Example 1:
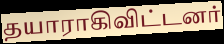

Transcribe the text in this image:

தயாராகிவிட்டனர்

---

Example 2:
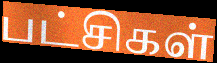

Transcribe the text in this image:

பட்சிகள்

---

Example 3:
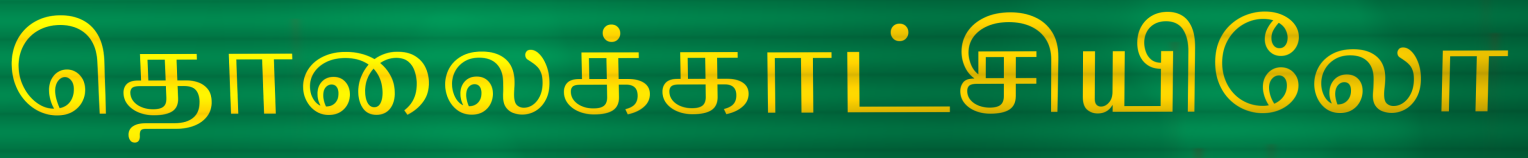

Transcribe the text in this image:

தொலைக்காட்சியிலோ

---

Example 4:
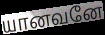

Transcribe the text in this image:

யானவனே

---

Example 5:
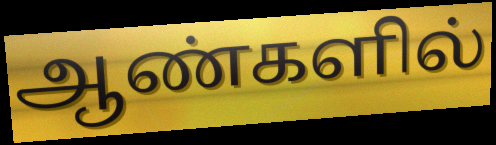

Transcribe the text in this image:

ஆண்களில்